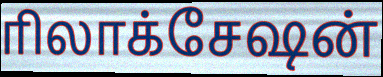
ரிலாக்சேஷன்